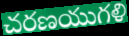
చరణయుగళి